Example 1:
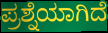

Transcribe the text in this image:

ಪ್ರಶ್ನೆಯಾಗಿದೆ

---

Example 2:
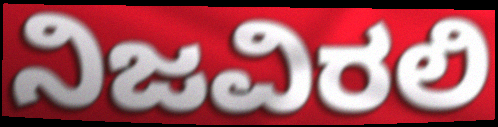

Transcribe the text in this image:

ನಿಜವಿರಲಿ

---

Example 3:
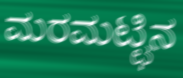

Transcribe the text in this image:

ಮರಮಟ್ಟಿನ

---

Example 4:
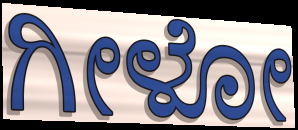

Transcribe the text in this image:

ಗೀಳೋ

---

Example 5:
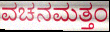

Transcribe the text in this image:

ವಚನಮತ್ತಂ